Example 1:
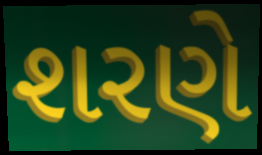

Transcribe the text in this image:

શરણે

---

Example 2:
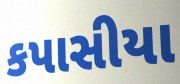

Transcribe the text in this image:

કપાસીયા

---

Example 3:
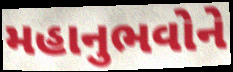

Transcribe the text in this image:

મહાનુભવોને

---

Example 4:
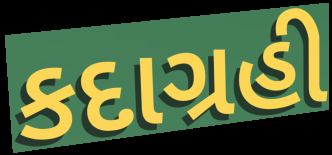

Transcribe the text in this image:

કદાગ્રહી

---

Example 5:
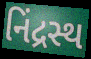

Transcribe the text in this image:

નિંદ્રસ્થ